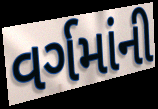
વર્ગમાંની